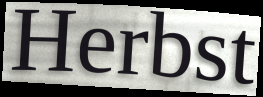
Herbst